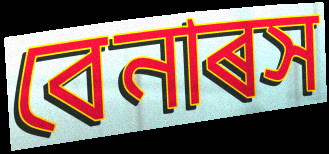
বেনাৰস